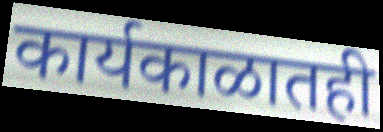
कार्यकाळातही